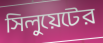
সিলুয়েটের